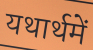
यथार्थमें